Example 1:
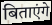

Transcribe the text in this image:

बिताएंगे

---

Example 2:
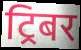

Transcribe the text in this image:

ट्रिबर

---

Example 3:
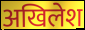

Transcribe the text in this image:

अखिलेश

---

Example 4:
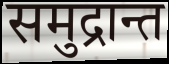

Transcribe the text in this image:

समुद्रान्त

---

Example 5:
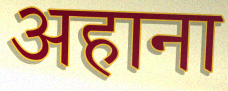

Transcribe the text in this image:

अहाना